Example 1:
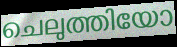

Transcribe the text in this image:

ചെലുത്തിയോ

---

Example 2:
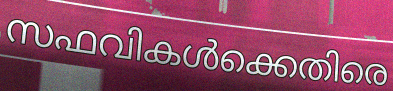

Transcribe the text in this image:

സഫവികൾക്കെതിരെ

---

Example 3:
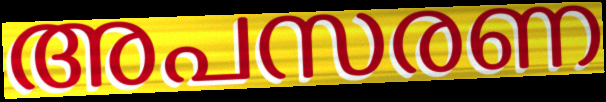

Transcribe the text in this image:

അപസരണ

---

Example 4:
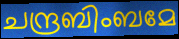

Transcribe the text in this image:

ചന്ദ്രബിംബമേ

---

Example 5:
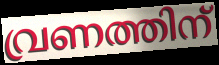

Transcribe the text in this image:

വ്രണത്തിന്